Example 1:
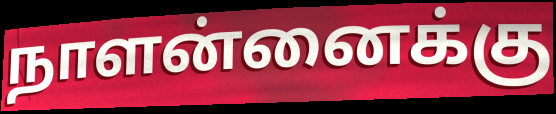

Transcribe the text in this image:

நாளன்னைக்கு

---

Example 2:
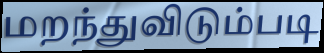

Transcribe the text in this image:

மறந்துவிடும்படி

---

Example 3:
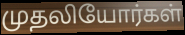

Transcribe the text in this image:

முதலியோர்கள்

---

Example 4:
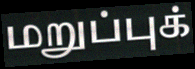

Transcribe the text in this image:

மறுப்புக்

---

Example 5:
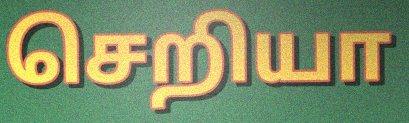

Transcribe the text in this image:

செறியா